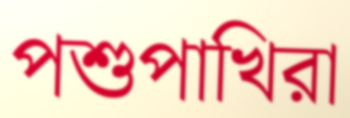
পশুপাখিরা